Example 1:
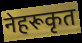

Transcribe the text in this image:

नेहरूकृत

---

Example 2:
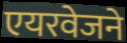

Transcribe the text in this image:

एयरवेजने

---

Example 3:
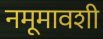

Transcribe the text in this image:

नमूमावशी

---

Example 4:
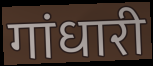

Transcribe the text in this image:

गांधारी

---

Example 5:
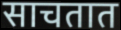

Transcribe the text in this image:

साचतात